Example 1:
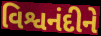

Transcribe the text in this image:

વિશ્વનંદીને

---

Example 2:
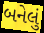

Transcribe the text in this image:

બનેલું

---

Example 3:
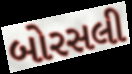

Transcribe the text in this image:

બોરસલી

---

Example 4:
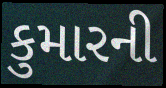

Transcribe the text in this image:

કુમારની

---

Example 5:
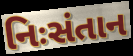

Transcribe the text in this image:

નિઃસંતાન